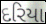
દરિયા